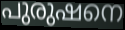
പുരുഷനെ